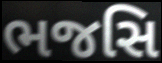
ભજસિ